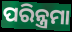
ପରିନ୍ତ୍ରମା